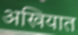
अखियात